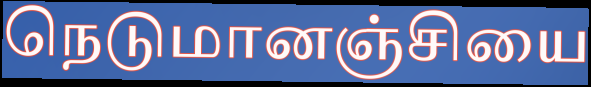
நெடுமானஞ்சியை